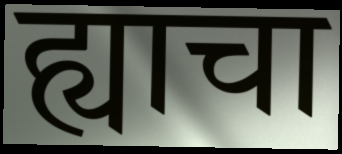
ह्याचा